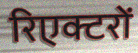
रिएक्टरों